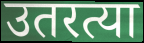
उतरत्या